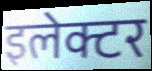
इलेक्टर